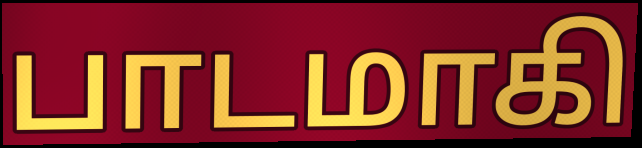
பாடமாகி